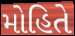
મોહિતે